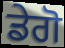
ਡੇਗੋ